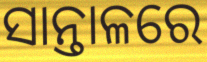
ସାନ୍ତାଳରେ